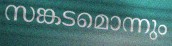
സങ്കടമൊന്നും